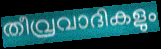
തീവ്രവാദികളും